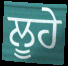
ਲੂਹੇ